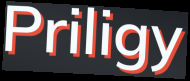
Priligy